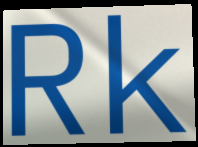
Rk